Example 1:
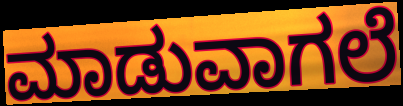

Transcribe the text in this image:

ಮಾಡುವಾಗಲೆ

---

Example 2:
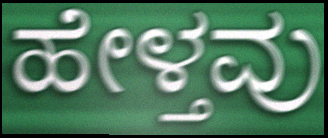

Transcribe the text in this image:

ಹೇಳ್ತವು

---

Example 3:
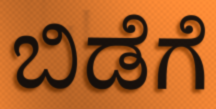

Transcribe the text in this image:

ಬಿಡೆಗೆ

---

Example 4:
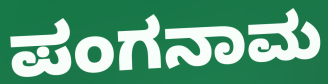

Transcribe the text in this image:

ಪಂಗನಾಮ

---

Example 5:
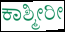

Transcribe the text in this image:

ಕಾಶ್ಮೀರೀ